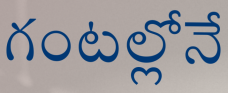
గంటల్లోనే